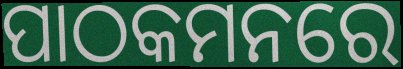
ପାଠକମନରେ